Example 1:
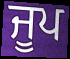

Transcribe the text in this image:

ਜੂਪ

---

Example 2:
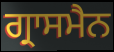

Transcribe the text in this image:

ਗ੍ਰਾਸਮੈਨ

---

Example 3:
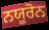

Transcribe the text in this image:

ਨਯੂਰੋਨ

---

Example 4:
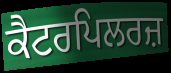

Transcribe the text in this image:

ਕੈਟਰਪਿਲਰਜ਼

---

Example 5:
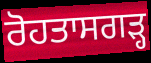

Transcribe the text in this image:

ਰੋਹਤਾਸਗੜ੍ਹ